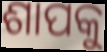
ଶାପକୁ